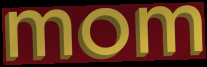
mom